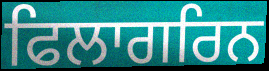
ਫਿਲਾਗਰਿਨ